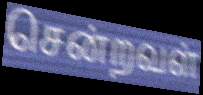
சென்றவள்